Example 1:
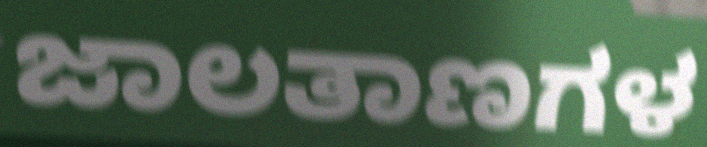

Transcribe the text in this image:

ಜಾಲತಾಣಗಳ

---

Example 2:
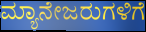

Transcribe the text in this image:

ಮ್ಯಾನೇಜರುಗಳಿಗೆ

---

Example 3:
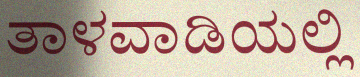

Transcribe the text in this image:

ತಾಳವಾಡಿಯಲ್ಲಿ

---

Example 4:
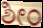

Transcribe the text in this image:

ಶೀಂ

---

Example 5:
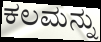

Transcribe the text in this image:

ಕಲಮನ್ನು